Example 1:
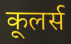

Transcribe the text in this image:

कूलर्स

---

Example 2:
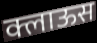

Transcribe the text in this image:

क्लाऊस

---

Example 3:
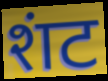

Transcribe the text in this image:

शंट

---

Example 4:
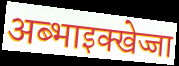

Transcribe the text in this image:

अब्भाइक्खेज्जा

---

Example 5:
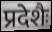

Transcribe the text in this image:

प्रदेशैः